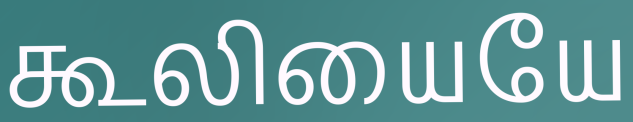
கூலியையே